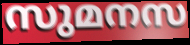
സുമനസ